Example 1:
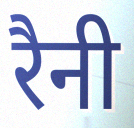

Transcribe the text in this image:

रैनी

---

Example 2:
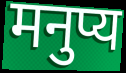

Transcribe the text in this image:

मनुप्य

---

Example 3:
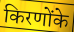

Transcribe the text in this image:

किरणोंके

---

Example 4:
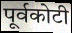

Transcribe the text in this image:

पूर्वकोटी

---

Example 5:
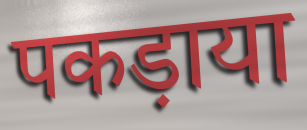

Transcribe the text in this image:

पकड़ाया